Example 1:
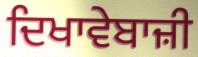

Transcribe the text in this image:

ਦਿਖਾਵੇਬਾਜ਼ੀ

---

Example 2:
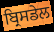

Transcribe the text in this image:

ਬ੍ਰਿਸਡੇਲ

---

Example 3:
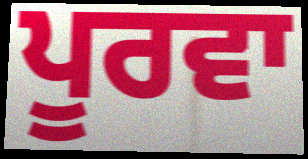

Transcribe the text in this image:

ਪੂਰਵਾ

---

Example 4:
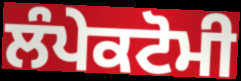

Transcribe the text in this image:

ਲੰਪੇਕਟੋਮੀ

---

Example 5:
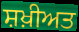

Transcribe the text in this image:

ਸ਼ਖ਼ੀਅਤ